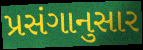
પ્રસંગાનુસાર